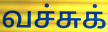
வச்சுக்